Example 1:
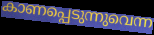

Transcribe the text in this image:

കാണപ്പെടുന്നുവെന്ന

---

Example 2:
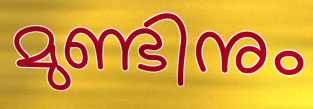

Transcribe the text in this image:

മുണ്ടിനും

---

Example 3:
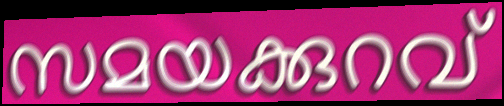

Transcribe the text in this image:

സമയക്കുറവ്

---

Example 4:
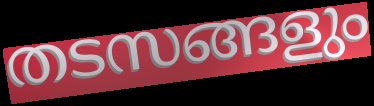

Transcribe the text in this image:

തടസങ്ങളും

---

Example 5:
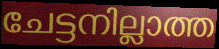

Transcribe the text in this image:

ചേട്ടനില്ലാത്ത